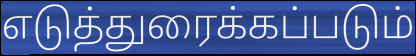
எடுத்துரைக்கப்படும்